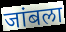
जांबला